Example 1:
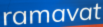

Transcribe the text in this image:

ramavat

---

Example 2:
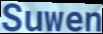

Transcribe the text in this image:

Suwen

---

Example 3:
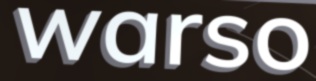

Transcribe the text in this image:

warso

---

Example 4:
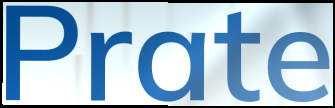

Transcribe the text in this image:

Prate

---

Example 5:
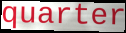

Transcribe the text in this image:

quarter